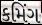
કમિંગ